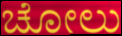
ಚೋಲು